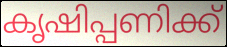
കൃഷിപ്പണിക്ക്